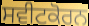
ਸਵੀਟਕੋਰਨ